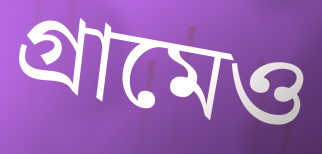
গ্রামেও